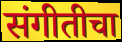
संगीतीचा